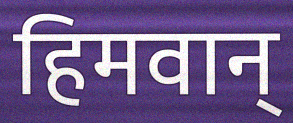
हिमवान्